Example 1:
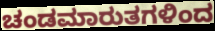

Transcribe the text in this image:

ಚಂಡಮಾರುತಗಳಿಂದ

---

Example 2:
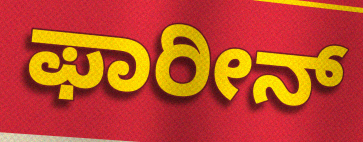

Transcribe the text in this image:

ಫಾರೀನ್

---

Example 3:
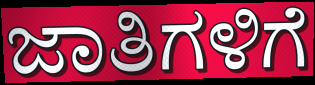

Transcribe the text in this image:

ಜಾತಿಗಳಿಗೆ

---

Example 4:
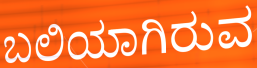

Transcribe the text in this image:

ಬಲಿಯಾಗಿರುವ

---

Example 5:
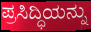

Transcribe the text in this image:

ಪ್ರಸಿದ್ಧಿಯನ್ನು